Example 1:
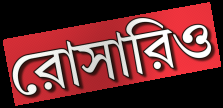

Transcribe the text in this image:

রোসারিও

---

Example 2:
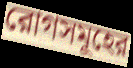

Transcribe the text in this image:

রোগসমূহের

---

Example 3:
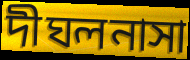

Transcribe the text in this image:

দীঘলনাসা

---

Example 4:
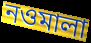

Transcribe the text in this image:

নওমালা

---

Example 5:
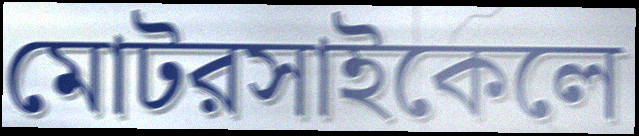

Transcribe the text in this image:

মোটরসাইকেলে